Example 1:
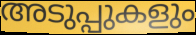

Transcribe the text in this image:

അടുപ്പുകളും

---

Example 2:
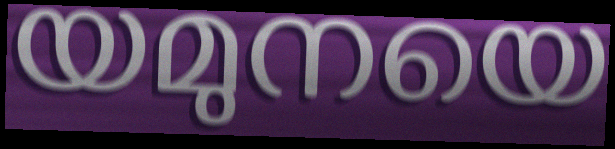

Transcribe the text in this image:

യമുനയെ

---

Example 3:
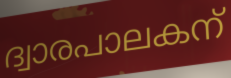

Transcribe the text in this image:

ദ്വാരപാലകന്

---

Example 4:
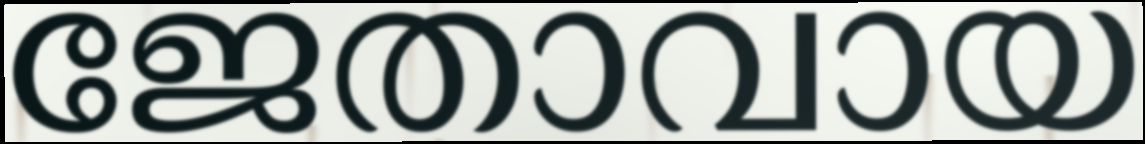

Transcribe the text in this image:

ജേതാവായ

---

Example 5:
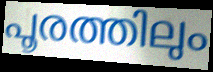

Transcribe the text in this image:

പൂരത്തിലും